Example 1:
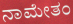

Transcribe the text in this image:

ನಾಮೇತಂ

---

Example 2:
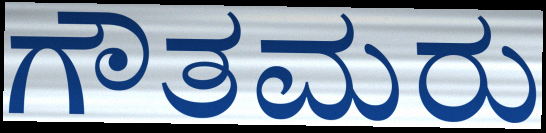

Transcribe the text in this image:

ಗೌತಮರು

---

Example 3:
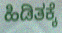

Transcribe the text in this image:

ಹಿಡಿತಕ್ಕೆ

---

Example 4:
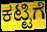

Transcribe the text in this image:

ಕಟ್ಟಿಗೆ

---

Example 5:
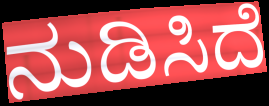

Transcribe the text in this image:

ನುಡಿಸಿದೆ